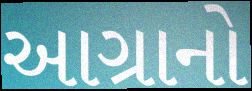
આગ્રાનો